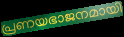
പ്രണയഭാജനമായി